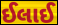
ઈલાઈ